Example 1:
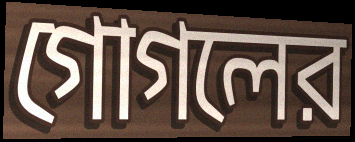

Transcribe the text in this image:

গোগলের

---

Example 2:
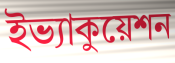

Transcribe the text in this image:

ইভ্যাকুয়েশন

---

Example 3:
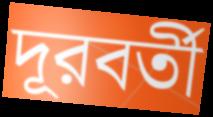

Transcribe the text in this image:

দূরবর্তী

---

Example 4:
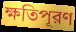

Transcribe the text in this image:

ক্ষতিপূরণ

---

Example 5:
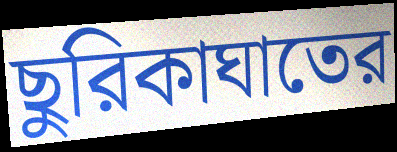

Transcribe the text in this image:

ছুরিকাঘাতের